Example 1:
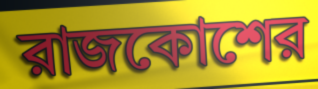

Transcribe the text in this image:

রাজকোশের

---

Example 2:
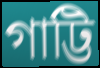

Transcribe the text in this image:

গাট্টি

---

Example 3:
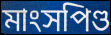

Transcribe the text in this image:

মাংসপিণ্ড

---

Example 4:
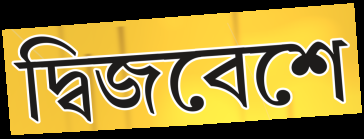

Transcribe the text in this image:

দ্বিজবেশে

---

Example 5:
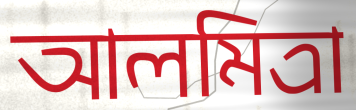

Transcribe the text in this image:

আলমিত্রা